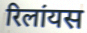
रिलांयस